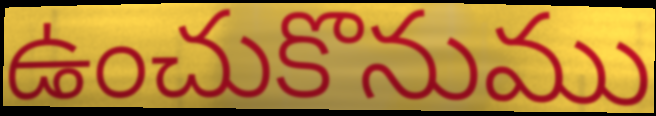
ఉంచుకొనుము